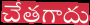
చేతగాదు